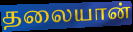
தலையான்